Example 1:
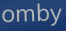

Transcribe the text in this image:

omby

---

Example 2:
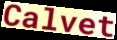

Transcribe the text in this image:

Calvet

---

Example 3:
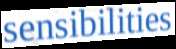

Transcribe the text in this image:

sensibilities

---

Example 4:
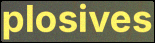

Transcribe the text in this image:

plosives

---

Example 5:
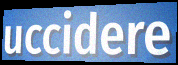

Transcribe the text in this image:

uccidere